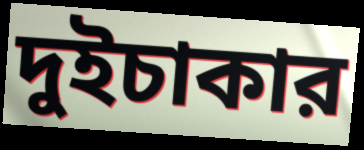
দুইচাকার